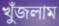
খুঁজলাম